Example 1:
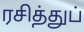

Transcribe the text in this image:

ரசித்துப்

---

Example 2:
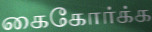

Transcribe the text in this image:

கைகோர்க்க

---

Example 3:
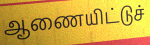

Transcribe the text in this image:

ஆணையிட்டுச்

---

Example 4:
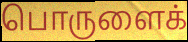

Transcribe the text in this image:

பொருளைக்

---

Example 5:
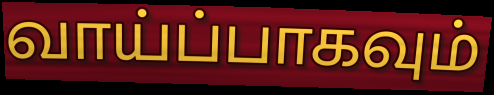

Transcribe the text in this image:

வாய்ப்பாகவும்